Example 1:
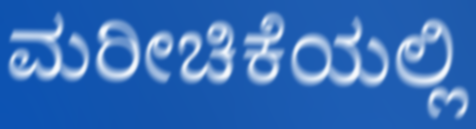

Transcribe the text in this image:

ಮರೀಚಿಕೆಯಲ್ಲಿ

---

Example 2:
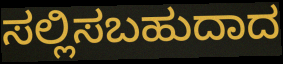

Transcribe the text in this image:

ಸಲ್ಲಿಸಬಹುದಾದ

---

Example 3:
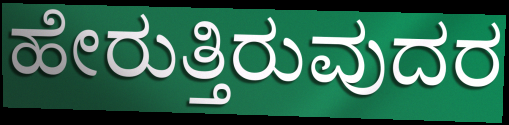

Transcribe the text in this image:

ಹೇರುತ್ತಿರುವುದರ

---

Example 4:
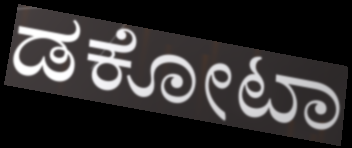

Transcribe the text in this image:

ಡಕೋಟಾ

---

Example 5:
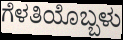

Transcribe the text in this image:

ಗೆಳತಿಯೊಬ್ಬಳು